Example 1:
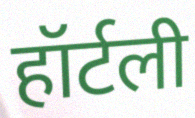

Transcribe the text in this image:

हॉर्टली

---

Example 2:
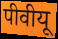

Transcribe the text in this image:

पीवीयू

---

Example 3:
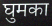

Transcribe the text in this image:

घुमका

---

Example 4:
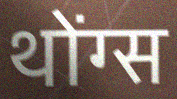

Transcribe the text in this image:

थोंग्स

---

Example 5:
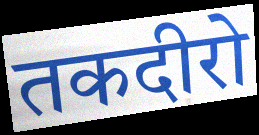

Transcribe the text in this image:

तकदीरो